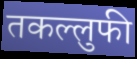
तकल्लुफी